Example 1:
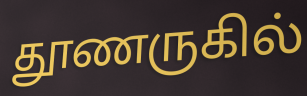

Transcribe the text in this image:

தூணருகில்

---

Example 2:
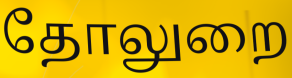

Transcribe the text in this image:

தோலுறை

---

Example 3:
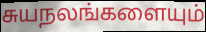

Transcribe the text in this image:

சுயநலங்களையும்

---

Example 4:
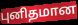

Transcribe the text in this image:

புனிதமான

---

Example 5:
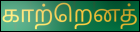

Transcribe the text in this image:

காற்றெனத்